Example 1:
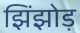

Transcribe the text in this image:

झिंझोड़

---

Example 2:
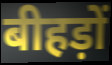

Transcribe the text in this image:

बीहड़ों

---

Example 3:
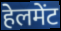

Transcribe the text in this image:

हेलमेंट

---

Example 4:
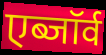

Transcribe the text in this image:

एब्जॉर्व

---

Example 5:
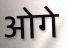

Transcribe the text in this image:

ओगे